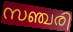
സഞ്ചരി